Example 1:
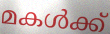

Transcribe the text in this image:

മകൾക്ക്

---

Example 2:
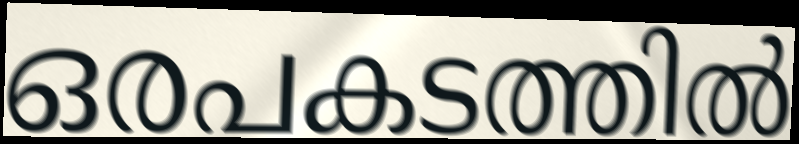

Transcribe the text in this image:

ഒരപകടത്തിൽ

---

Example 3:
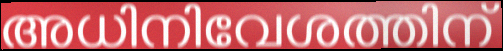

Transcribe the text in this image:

അധിനിവേശത്തിന്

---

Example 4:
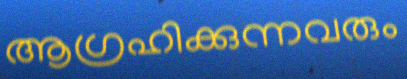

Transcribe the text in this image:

ആഗ്രഹിക്കുന്നവരും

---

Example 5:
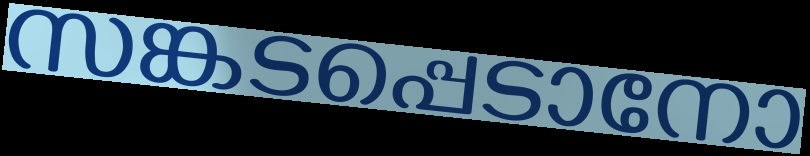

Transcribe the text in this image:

സങ്കടപ്പെടാനോ